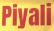
Piyali